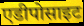
एडीपोसाइट